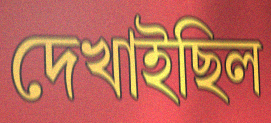
দেখাইছিল